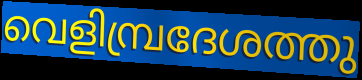
വെളിമ്പ്രദേശത്തു